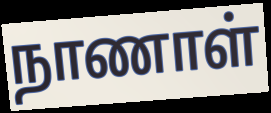
நாணாள்